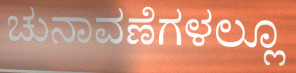
ಚುನಾವಣೆಗಳಲ್ಲೂ